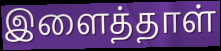
இளைத்தாள்